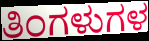
ತಿಂಗಳುಗಳ